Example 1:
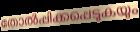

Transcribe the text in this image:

തോൽപ്പിക്കപ്പെടുകയും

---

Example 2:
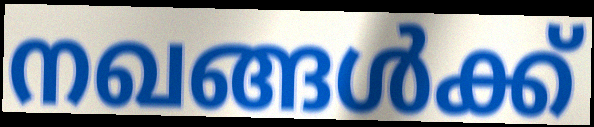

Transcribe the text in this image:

നഖങ്ങൾക്ക്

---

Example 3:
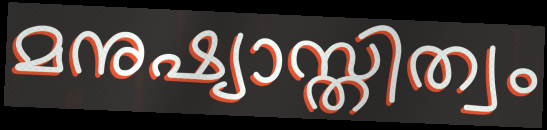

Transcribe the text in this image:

മനുഷ്യാസ്തിത്വം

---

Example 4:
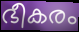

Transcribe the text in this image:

ഭീകരം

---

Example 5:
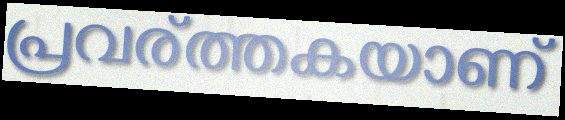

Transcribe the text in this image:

പ്രവര്ത്തകയാണ്